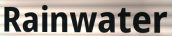
Rainwater